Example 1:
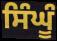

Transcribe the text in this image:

ਸਿੰਘੂੰ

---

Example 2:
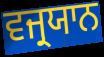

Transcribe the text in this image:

ਵਜ੍ਰਯਾਨ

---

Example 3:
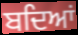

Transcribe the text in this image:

ਬਦਿਆਂ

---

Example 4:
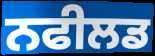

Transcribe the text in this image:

ਨਫੀਲਡ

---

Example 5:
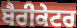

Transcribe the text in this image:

ਬੈਰੀਕੇਟਰ